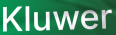
Kluwer